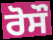
ਰੋਸੌ